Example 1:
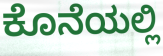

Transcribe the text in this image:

ಕೊನೆಯಲ್ಲಿ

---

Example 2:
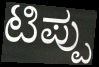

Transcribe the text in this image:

ಟಿಪ್ಪು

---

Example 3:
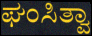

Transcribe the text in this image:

ಘಂಸಿತ್ವಾ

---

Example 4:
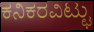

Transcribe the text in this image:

ಕನಿಕರವಿಟ್ಟು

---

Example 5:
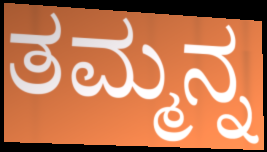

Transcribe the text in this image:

ತಮ್ಮನ್ನ